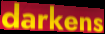
darkens